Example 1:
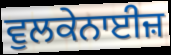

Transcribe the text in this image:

ਵੁਲਕੇਨਾਈਜ਼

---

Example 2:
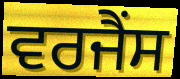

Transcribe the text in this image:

ਵਰਜੈਂਸ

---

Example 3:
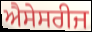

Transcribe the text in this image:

ਐਸੇਸਰੀਜ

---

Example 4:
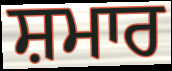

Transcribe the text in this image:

ਸ਼ਮਾਰ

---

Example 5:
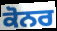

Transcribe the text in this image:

ਕੋਨਰ